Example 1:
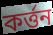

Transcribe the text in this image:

কর্ত্তন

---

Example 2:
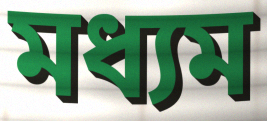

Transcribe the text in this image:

মধ্যম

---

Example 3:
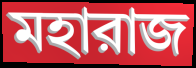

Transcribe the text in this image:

মহারাজ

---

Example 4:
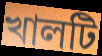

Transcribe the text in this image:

খালটি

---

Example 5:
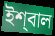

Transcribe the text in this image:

ইশ্‌বাল